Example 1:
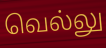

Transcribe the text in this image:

வெல்லு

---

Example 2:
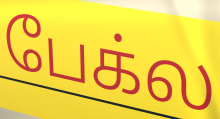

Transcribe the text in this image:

பேக்ல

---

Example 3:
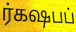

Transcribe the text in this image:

ர்கஷபப்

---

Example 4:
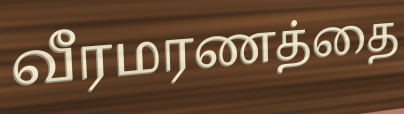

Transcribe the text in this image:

வீரமரணத்தை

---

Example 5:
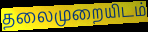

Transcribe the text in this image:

தலைமுறையிடம்